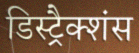
डिस्ट्रैक्शंस